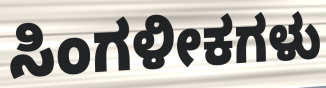
ಸಿಂಗಳೀಕಗಳು